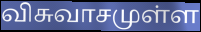
விசுவாசமுள்ள